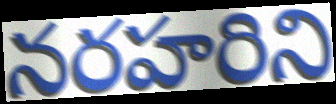
నరహరిని